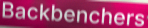
Backbenchers